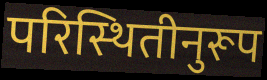
परिस्थितीनुरूप